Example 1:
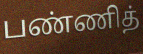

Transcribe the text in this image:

பண்ணித்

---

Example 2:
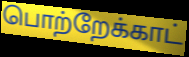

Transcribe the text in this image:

பொற்றேக்காட்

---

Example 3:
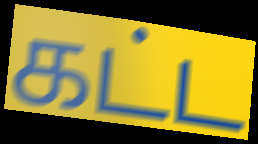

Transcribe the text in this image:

கட்ட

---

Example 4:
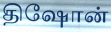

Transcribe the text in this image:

திஷோன்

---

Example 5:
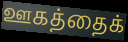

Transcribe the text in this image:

ஊகத்தைக்